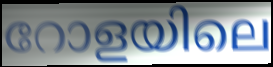
റോളയിലെ